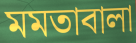
মমতাবালা